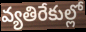
వ్యతిరేకుల్లో